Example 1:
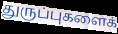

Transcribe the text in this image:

துருப்புகளைக்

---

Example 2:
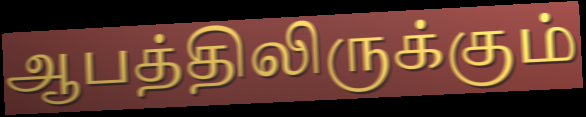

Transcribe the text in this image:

ஆபத்திலிருக்கும்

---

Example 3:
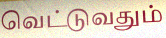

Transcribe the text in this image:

வெட்டுவதும்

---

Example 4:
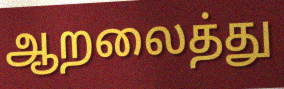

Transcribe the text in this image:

ஆறலைத்து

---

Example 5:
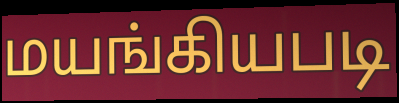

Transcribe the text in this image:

மயங்கியபடி